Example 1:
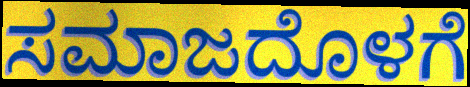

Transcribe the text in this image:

ಸಮಾಜದೊಳಗೆ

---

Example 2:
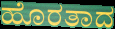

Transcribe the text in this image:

ಹೊರತಾದ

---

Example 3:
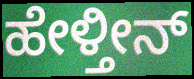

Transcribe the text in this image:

ಹೇಳ್ತೀನ್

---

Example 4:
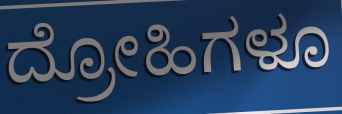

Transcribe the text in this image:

ದ್ರೋಹಿಗಳೂ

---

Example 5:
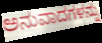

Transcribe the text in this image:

ಅನುವಾದಗಳನ್ನು